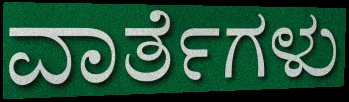
ವಾರ್ತೆಗಳು